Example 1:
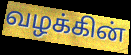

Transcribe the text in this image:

வழக்கின்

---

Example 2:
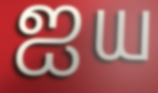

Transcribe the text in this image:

ஐய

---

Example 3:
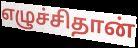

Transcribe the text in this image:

எழுச்சிதான்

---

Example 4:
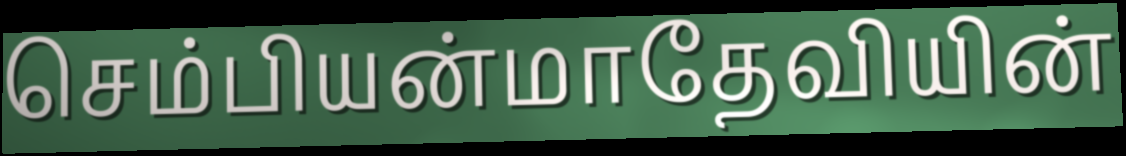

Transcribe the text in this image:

செம்பியன்மாதேவியின்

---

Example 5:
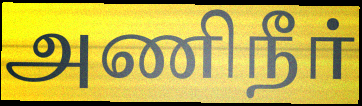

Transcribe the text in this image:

அணிநீர்